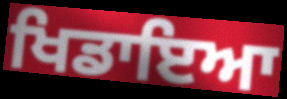
ਖਿਡਾਇਆ